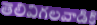
తెలివిగలవాడికి